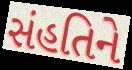
સંહતિને